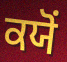
ਕਯੋਂ